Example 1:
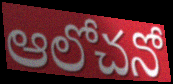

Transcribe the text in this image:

ఆలోచనో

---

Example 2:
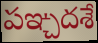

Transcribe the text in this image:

పఞ్చదశే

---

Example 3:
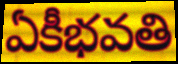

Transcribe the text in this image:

ఏకీభవతి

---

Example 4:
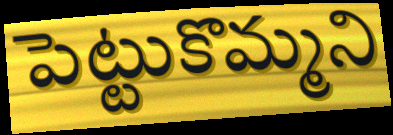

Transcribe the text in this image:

పెట్టుకొమ్మని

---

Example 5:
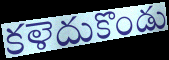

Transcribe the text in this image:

కళెదుకొండు